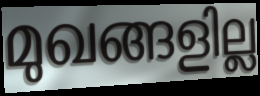
മുഖങ്ങളില്ല